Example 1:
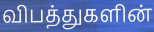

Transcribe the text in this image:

விபத்துகளின்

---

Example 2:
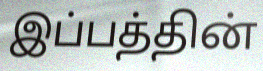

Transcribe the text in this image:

இப்பத்தின்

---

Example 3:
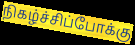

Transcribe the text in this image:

நிகழ்ச்சிப்போக்கு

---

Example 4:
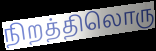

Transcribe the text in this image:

நிறத்திலொரு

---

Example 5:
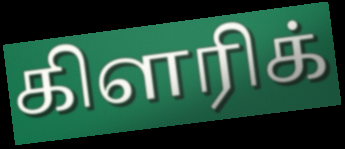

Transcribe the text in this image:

கிளரிக்